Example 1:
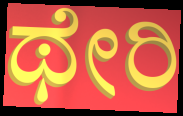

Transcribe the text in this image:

ಥೇರಿ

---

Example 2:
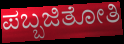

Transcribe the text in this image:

ಪಬ್ಬಜಿತೋತಿ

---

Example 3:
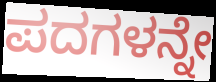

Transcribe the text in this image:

ಪದಗಳನ್ನೇ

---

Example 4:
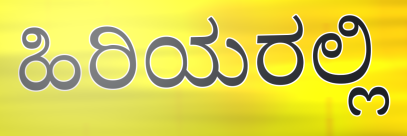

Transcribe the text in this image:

ಹಿರಿಯರಲ್ಲಿ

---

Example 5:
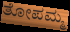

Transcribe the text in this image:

ತೋಪಮ್ಮ